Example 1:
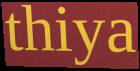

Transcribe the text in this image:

thiya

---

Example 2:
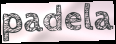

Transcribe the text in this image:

padela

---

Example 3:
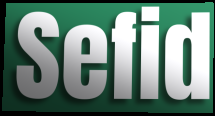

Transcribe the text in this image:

Sefid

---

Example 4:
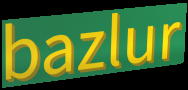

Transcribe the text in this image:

bazlur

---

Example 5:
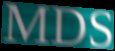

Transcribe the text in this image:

MDS